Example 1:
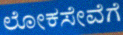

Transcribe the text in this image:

ಲೋಕಸೇವೆಗೆ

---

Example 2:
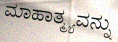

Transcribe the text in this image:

ಮಾಹಾತ್ಮ್ಯವನ್ನು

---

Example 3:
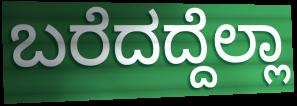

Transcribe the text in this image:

ಬರೆದದ್ದೆಲ್ಲಾ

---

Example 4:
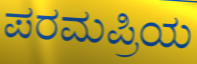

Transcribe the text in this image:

ಪರಮಪ್ರಿಯ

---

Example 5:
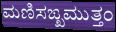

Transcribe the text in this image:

ಮಣಿಸಙ್ಖಮುತ್ತಂ